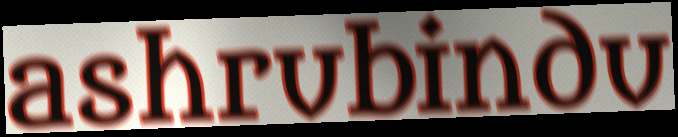
ashrubindu